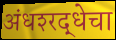
अंधश्रद्धेचा